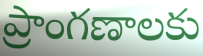
ప్రాంగణాలకు